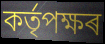
কৰ্তৃপক্ষৰ